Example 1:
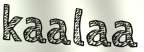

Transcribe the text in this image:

kaalaa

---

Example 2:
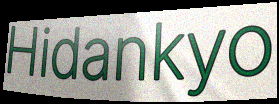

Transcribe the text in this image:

Hidankyo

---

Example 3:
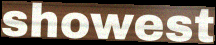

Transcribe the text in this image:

showest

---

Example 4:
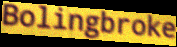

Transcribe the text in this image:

Bolingbroke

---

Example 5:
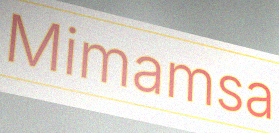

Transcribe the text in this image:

Mimamsa